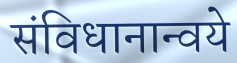
संविधानान्वये